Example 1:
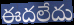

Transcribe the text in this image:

ఈదలేదు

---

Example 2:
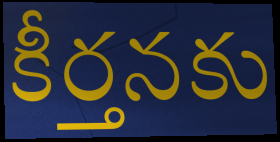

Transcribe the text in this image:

కీర్తనకు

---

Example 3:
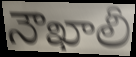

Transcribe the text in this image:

నౌఖాలీ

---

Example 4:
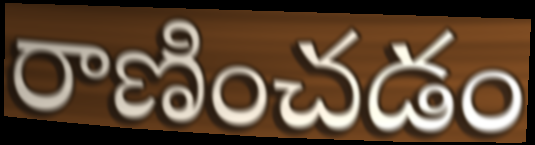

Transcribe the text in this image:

రాణించడం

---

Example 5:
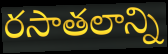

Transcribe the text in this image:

రసాతలాన్ని